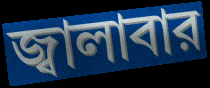
জ্বালাবার